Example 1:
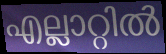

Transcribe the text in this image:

എല്ലാറ്റിൽ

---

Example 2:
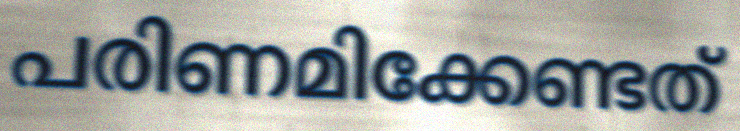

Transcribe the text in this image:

പരിണമിക്കേണ്ടത്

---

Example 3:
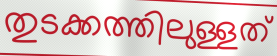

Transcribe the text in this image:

തുടക്കത്തിലുള്ളത്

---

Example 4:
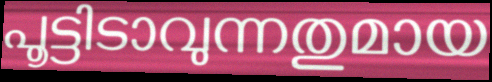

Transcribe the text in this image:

പൂട്ടിടാവുന്നതുമായ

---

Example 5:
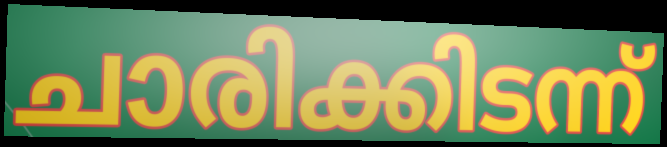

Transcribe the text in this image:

ചാരിക്കിടന്ന്